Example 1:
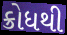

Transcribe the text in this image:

ક્રોધથી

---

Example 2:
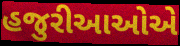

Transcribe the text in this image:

હજુરીઆઓએ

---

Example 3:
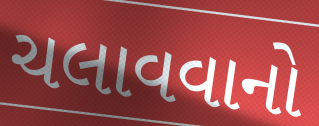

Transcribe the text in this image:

ચલાવવાનો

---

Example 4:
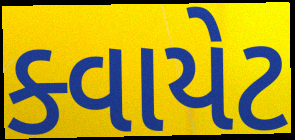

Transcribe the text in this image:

ક્વાયેટ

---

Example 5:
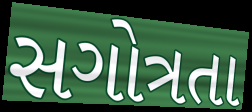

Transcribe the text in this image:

સગોત્રતા